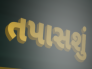
તપાસશું